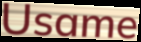
Usame